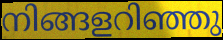
നിങ്ങളറിഞ്ഞു